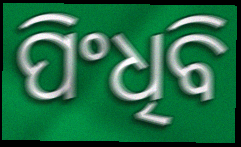
ପିଂଧିବି